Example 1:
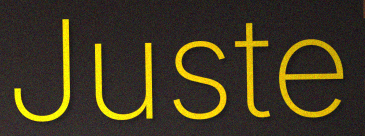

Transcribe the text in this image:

Juste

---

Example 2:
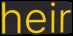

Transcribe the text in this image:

heir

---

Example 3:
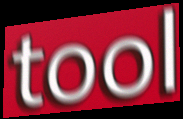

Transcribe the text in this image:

tool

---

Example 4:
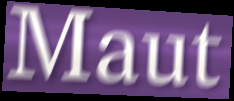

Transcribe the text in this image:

Maut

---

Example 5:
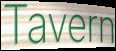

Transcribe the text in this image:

Tavern